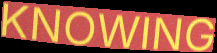
KNOWING